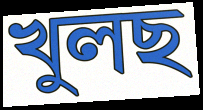
খুলছ